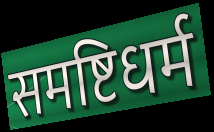
समष्टिधर्म